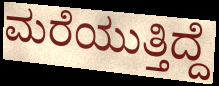
ಮರೆಯುತ್ತಿದ್ದೆ